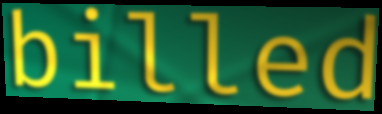
billed